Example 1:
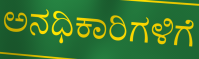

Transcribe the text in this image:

ಅನಧಿಕಾರಿಗಳಿಗೆ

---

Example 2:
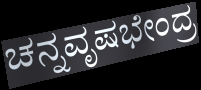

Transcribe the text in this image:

ಚನ್ನವೃಷಭೇಂದ್ರ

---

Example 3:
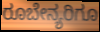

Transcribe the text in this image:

ರೂಬೇನ್ಯರಿಗೂ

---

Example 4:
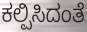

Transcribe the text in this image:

ಕಲ್ಪಿಸಿದಂತೆ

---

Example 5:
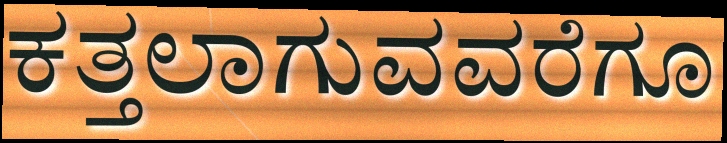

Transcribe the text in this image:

ಕತ್ತಲಾಗುವವರೆಗೂ